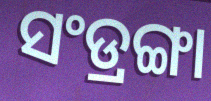
ସଂଡ୍ରଙ୍ଗା